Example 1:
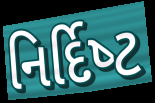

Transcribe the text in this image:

નિર્દિષ્‍ટ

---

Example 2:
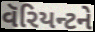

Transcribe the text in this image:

વૅરિયન્ટને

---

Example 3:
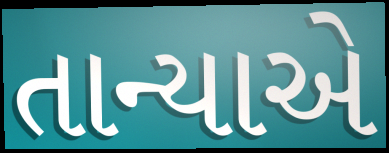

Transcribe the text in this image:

તાન્યાએ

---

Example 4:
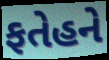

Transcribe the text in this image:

ફતેહને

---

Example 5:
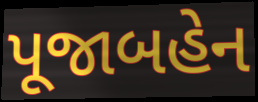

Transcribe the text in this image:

પૂજાબહેન